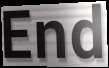
End